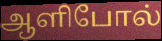
ஆளிபோல்